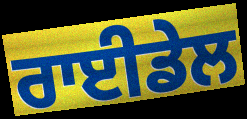
ਰਾਈਡੇਲ